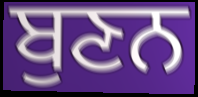
ਬੁਣਨ